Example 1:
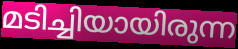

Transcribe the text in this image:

മടിച്ചിയായിരുന്ന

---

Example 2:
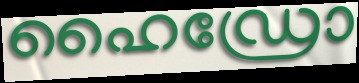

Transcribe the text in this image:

ഹൈഡ്രോ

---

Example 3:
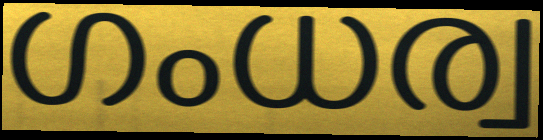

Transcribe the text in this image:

ഗംധര്വ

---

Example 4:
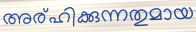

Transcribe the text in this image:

അര്ഹിക്കുന്നതുമായ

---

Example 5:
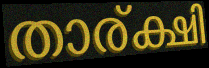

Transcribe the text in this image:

താര്ക്ഷി